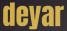
deyar